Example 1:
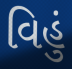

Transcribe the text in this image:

વિહું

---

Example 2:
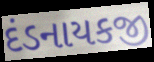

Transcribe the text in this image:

દંડનાયકજી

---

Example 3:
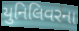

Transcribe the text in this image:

યુનિલિવરના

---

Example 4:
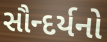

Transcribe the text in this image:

સૌન્દર્યનો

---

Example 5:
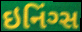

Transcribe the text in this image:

ઇનિંગ્સ